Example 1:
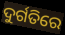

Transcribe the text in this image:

ଦୁର୍ଗତିରେ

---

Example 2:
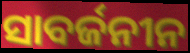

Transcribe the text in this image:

ସାବର୍ଜନୀନ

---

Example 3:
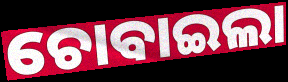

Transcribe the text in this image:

ଚୋବାଇଲା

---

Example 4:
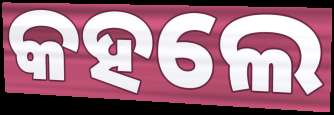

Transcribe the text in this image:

କହଲେ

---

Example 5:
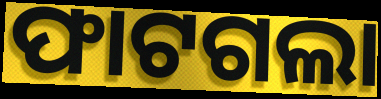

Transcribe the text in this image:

ଫାଟଗଲା